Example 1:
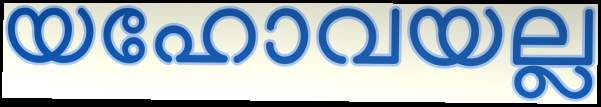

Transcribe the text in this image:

യഹോവയല്ല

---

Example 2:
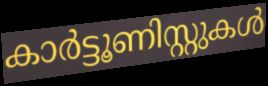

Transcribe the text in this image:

കാർട്ടൂണിസ്റ്റുകൾ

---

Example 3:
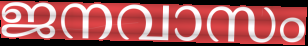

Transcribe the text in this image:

ജനവാസം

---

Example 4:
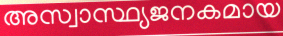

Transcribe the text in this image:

അസ്വാസ്ഥ്യജനകമായ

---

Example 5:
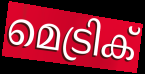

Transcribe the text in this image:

മെട്രിക്